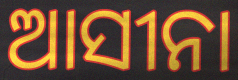
ଆସୀନା